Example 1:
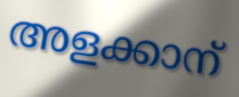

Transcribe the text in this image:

അളക്കാന്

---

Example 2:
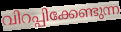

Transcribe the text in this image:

വിറപ്പിക്കേണ്ടുന്ന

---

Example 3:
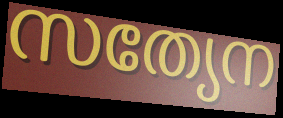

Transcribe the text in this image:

സത്യേന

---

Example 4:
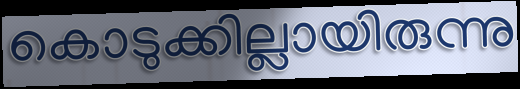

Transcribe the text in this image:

കൊടുക്കില്ലായിരുന്നു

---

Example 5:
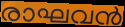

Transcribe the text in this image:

രാഘവൻ